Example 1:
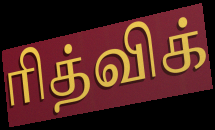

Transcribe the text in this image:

ரித்விக்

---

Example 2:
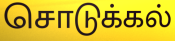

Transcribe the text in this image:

சொடுக்கல்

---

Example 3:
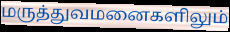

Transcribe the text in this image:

மருத்துவமனைகளிலும்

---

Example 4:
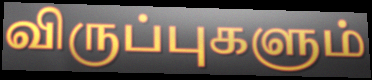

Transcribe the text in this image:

விருப்புகளும்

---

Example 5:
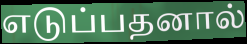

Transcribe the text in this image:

எடுப்பதனால்